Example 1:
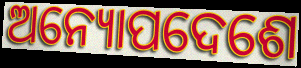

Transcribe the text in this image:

ଅନ୍ୟୋପଦେଶେ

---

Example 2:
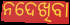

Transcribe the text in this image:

ନଦେଖିବା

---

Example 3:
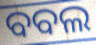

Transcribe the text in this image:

ବବଲ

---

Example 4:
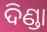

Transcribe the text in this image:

ଦିଣ୍ଡା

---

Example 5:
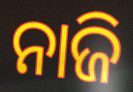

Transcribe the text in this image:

ନାଜି